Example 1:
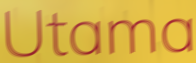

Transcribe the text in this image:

Utama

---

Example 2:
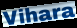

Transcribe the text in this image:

Vihara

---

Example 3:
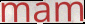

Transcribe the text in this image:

mam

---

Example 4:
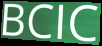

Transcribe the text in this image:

BCIC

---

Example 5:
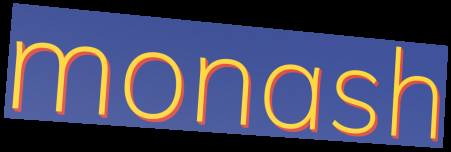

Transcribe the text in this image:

monash